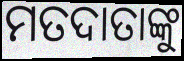
ମତଦାତାଙ୍କୁ